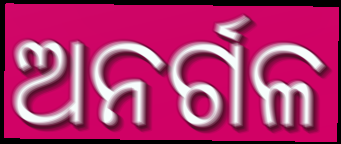
ଅନର୍ଗଳ